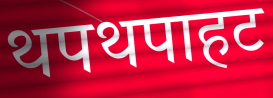
थपथपाहट